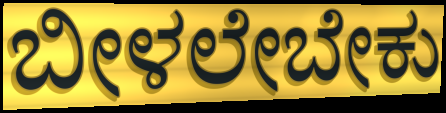
ಬೀಳಲೇಬೇಕು